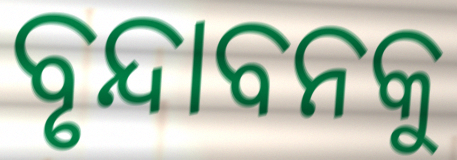
ବୃନ୍ଦାବନକୁ